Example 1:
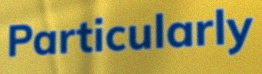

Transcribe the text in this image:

Particularly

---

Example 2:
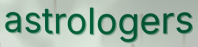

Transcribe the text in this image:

astrologers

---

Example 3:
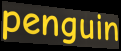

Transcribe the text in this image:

penguin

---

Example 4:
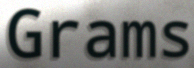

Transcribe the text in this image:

Grams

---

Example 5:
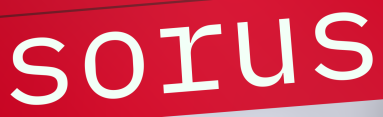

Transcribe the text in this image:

sorus